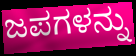
ಜಪಗಳನ್ನು